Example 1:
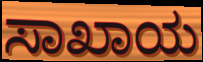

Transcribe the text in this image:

ಸಾಖಾಯ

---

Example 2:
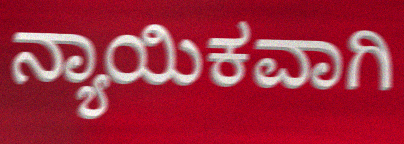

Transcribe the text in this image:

ನ್ಯಾಯಿಕವಾಗಿ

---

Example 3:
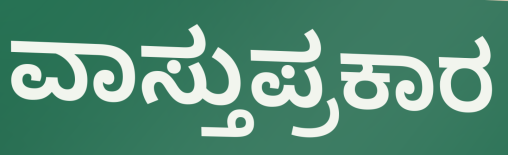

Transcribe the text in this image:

ವಾಸ್ತುಪ್ರಕಾರ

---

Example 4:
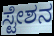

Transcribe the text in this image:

ಸ್ಟೇಶನ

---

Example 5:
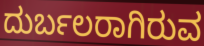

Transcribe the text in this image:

ದುರ್ಬಲರಾಗಿರುವ